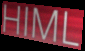
HIML